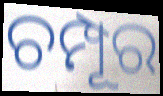
ଚମ୍ପୂର